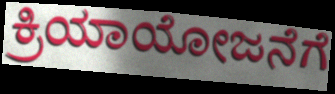
ಕ್ರಿಯಾಯೋಜನೆಗೆ